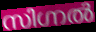
സിഗ്നൽ